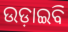
ଉଡ଼ାଇବି